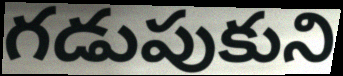
గడుపుకుని